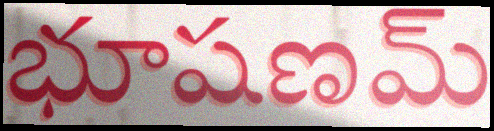
భూషణమ్